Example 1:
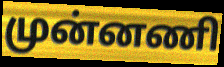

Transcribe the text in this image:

முன்னணி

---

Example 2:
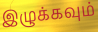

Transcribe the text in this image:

இழுக்கவும்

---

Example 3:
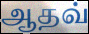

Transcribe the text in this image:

ஆதவ்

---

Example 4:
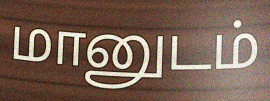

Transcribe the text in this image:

மானுடம்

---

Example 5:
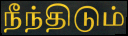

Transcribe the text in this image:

நீந்திடும்